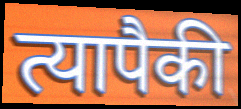
त्यापैकी